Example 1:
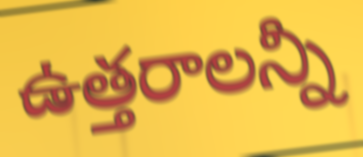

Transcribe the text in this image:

ఉత్తరాలన్నీ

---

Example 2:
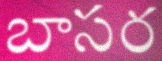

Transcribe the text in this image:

బాసర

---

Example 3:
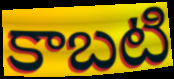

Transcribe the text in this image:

కాబటి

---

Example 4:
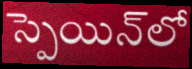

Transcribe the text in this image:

స్పెయిన్‌లో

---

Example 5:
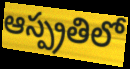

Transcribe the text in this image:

ఆస్ప్రతిలో